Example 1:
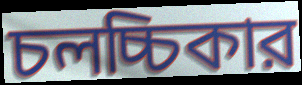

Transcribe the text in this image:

চলচ্চিকার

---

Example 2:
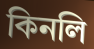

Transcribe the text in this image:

কিনলি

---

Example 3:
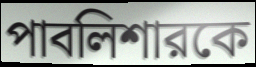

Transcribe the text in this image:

পাবলিশারকে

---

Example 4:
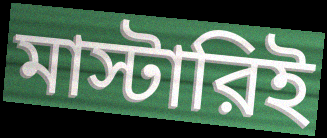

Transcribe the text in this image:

মাস্টারিই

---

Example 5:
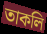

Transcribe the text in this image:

তাকলি